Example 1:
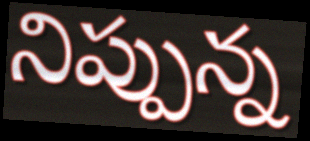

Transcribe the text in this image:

నిప్పున్న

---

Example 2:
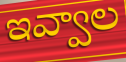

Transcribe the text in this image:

ఇవ్వాల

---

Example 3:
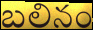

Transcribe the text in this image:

బలినం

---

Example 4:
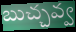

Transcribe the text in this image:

బుచ్చవ్వ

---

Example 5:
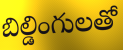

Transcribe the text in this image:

బిల్డింగులతో